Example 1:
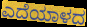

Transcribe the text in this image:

ಎದೆಯಾಳದ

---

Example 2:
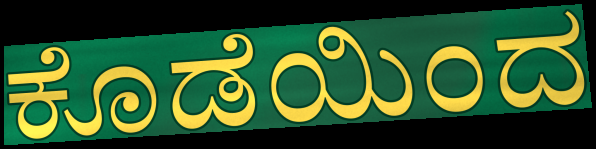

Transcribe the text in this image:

ಕೊಡೆಯಿಂದ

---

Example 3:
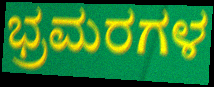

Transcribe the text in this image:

ಭ್ರಮರಗಳ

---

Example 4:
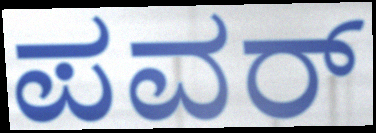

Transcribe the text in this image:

ಪವರ್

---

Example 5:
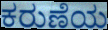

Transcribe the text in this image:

ಕರುಣೆಯ